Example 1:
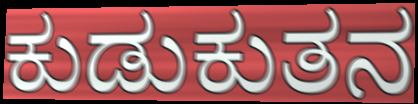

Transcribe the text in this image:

ಕುಡುಕುತನ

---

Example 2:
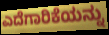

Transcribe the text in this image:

ಎದೆಗಾರಿಕೆಯನ್ನು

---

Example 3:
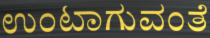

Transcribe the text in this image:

ಉಂಟಾಗುವಂತೆ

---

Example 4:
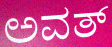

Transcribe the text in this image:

ಅವತ್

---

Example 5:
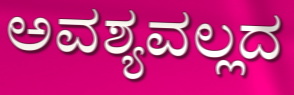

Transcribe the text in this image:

ಅವಶ್ಯವಲ್ಲದ